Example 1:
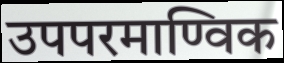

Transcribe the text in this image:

उपपरमाण्विक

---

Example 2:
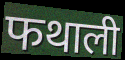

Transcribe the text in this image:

फथाली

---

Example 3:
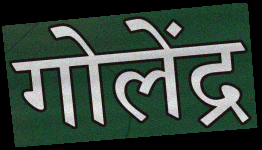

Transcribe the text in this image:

गोलेंद्र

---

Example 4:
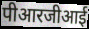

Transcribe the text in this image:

पीआरजीआई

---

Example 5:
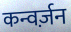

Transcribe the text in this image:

कन्वर्ज़न